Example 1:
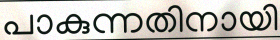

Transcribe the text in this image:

പാകുന്നതിനായി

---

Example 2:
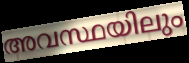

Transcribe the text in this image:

അവസ്ഥയിലും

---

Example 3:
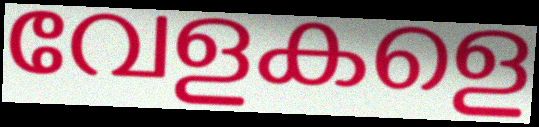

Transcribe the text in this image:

വേളകളെ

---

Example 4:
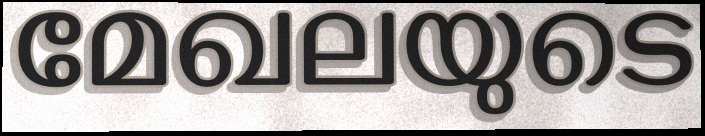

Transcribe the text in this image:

മേഖലയുടെ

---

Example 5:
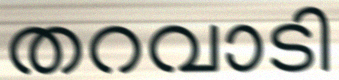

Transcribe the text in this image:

തറവാടി